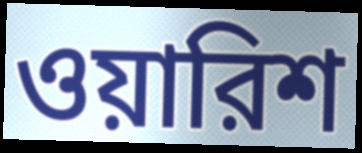
ওয়ারিশ